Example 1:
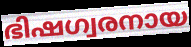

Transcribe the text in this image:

ഭിഷഗ്വരനായ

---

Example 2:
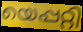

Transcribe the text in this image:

യെപ്പറ്റി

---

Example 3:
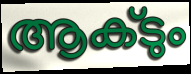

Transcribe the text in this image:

ആക്ടും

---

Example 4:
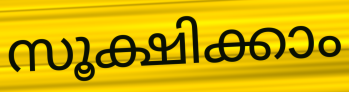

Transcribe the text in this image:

സൂക്ഷിക്കാം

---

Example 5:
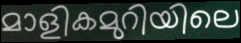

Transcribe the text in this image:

മാളികമുറിയിലെ